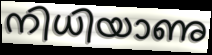
നിധിയാണു